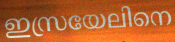
ഇസ്രയേലിനെ